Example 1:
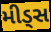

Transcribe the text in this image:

મીડ્સ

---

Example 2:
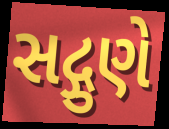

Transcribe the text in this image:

સદ્ગુણે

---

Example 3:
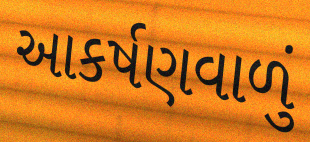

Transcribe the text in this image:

આકર્ષણવાળું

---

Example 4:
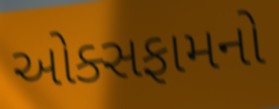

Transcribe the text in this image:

ઓક્સફામનો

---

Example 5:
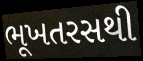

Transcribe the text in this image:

ભૂખતરસથી